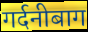
गर्दनीबाग